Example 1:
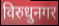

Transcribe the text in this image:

विरुधुनगर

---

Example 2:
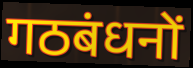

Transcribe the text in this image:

गठबंधनों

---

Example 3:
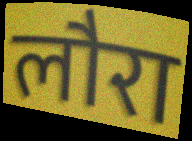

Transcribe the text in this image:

लौरा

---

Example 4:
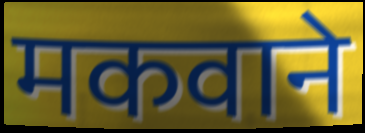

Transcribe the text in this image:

मकवाने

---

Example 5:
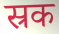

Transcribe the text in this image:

स्रक